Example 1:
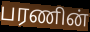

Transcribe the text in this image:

பரணின்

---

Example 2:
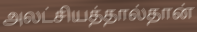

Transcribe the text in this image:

அலட்சியத்தால்தான்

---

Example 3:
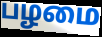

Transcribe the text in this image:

பழமை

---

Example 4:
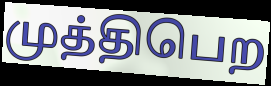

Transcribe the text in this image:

முத்திபெற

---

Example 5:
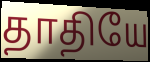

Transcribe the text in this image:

தாதியே